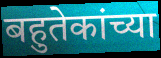
बहुतेकांच्या